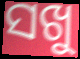
ସଖୁ